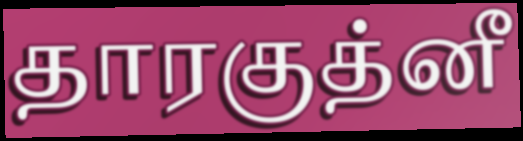
தாரகுத்னீ